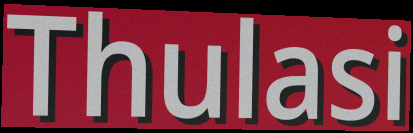
Thulasi